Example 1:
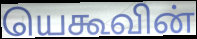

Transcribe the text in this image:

யெகூவின்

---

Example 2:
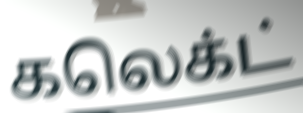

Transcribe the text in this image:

கலெக்ட்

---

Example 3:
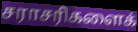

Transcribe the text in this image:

சராசரிகளைக்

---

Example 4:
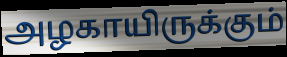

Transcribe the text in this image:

அழகாயிருக்கும்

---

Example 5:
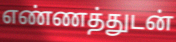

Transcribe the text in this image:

எண்ணத்துடன்